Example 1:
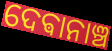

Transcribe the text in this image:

ଦେଵାନାଞ୍ଚ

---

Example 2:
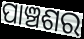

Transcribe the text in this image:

ପାଞ୍ଚଶର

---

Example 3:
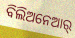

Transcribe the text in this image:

ବିଲିଅନେଆର୍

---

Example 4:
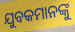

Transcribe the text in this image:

ଯୁବକମାନଙ୍କୁ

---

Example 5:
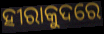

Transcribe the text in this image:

ହୀରାକୁଦରେ